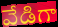
వేడిగా